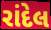
રાંદેલ